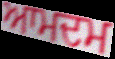
ਆਮਦਮ